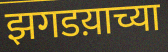
झगडय़ाच्या